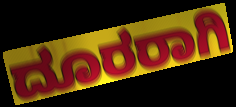
ದೂರರಾಗಿ